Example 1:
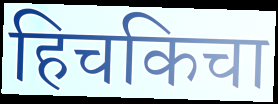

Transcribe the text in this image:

हिचकिचा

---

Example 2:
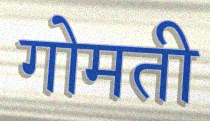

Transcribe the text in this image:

गोमती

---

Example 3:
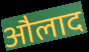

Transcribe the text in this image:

औलाद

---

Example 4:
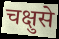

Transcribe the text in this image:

चक्षुसे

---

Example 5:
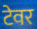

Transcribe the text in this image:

टेवर